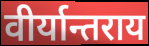
वीर्यान्तराय